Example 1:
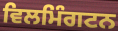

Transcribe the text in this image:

ਵਿਲਮਿੰਗਟਨ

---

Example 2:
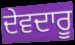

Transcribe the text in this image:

ਦੇਵਦਾਰੂ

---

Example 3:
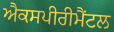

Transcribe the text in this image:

ਐਕਸਪੀਰੀਮੈਂਟਲ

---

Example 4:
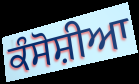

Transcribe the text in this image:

ਕੰਸੋਸ਼ੀਆ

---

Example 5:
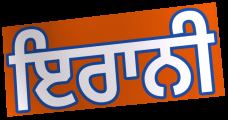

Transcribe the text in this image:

ਇਰਾਨੀ